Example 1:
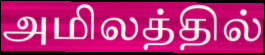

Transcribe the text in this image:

அமிலத்தில்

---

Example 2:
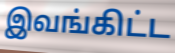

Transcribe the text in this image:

இவங்கிட்ட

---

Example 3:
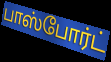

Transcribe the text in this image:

பாஸ்போர்ட்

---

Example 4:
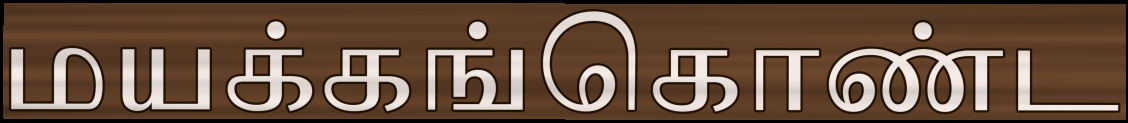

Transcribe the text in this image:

மயக்கங்கொண்ட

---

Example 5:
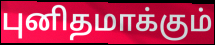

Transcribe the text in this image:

புனிதமாக்கும்